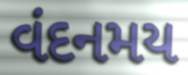
વંદનમય